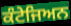
ਕੰਟੇਜਿਅਨ